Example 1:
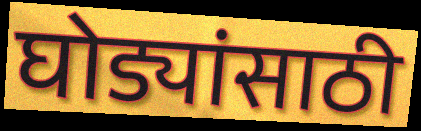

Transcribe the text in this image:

घोड्यांसाठी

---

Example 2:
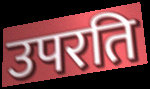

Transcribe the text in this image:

उपरति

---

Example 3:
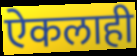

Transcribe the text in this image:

ऐकलाही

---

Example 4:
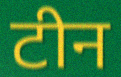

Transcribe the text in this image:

टीन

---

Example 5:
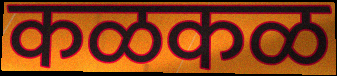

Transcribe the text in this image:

कळकळ